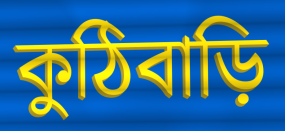
কুঠিবাড়ি